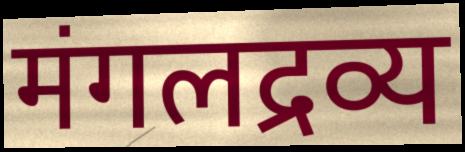
मंगलद्रव्य